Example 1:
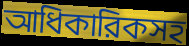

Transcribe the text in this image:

আধিকারিকসহ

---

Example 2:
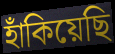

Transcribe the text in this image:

হাঁকিয়েছি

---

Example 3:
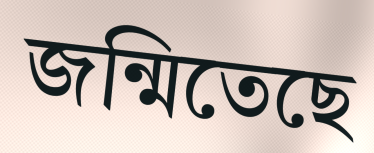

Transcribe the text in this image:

জন্মিতেছে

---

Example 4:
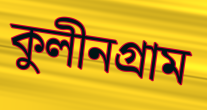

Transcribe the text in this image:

কুলীনগ্রাম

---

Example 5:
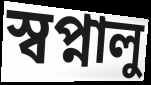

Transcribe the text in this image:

স্বপ্নালু